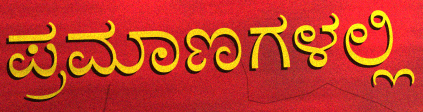
ಪ್ರಮಾಣಗಳಲ್ಲಿ